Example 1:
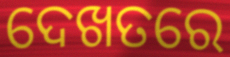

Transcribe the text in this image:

ଦେଖତରେ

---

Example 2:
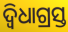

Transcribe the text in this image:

ଦ୍ୱିଧାଗ୍ରସ୍ତ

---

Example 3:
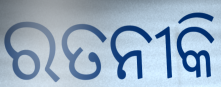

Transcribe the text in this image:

ରତନୀକି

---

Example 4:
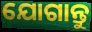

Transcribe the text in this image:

ଯୋଗାନ୍ତୁ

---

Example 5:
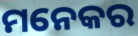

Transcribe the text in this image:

ମନେକର